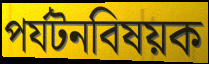
পর্যটনবিষয়ক